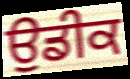
ਉਡੀਕ